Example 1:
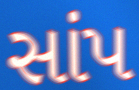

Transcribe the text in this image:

સાંપ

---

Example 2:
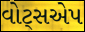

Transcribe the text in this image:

વોટ્સએપ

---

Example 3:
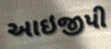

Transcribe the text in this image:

આઇજીપી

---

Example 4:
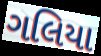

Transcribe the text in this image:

ગલિયા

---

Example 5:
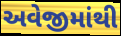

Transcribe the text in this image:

અવેજીમાંથી